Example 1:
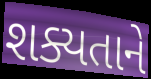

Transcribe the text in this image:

શક્યતાને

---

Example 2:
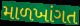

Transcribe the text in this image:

માળખાંગત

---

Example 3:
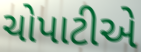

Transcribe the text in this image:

ચોપાટીએ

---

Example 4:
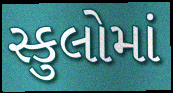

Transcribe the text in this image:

સ્કુલોમાં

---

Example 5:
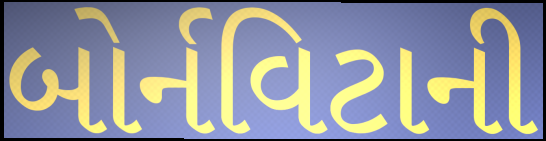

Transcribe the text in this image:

બોર્નવિટાની